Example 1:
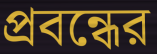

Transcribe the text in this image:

প্রবন্ধের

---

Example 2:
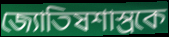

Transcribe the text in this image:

জ্যোতিষশাস্ত্রকে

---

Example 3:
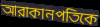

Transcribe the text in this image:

আরাকানপতিকে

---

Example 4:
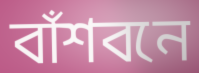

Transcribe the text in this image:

বাঁশবনে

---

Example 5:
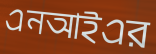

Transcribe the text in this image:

এনআইএর